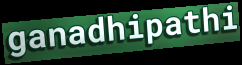
ganadhipathi